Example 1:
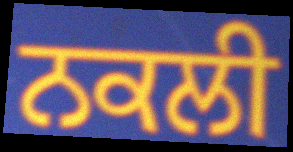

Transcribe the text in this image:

ਨਕਲੀ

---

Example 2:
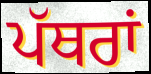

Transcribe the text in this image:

ਪੱਥਰਾਂ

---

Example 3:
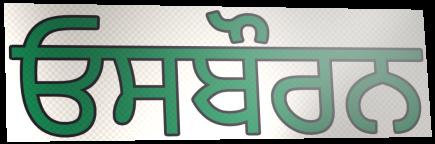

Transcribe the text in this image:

ਓਸਬੌਰਨ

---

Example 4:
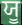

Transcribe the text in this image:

ਯੂ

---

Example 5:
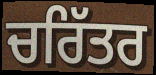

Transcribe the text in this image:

ਚਰਿੱਤਰ